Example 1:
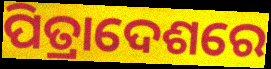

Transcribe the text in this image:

ପିତ୍ରାଦେଶରେ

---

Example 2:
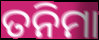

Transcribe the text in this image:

ତନିମା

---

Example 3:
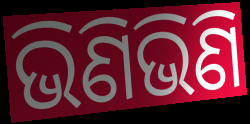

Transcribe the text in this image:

ଭିଣିଭିଣି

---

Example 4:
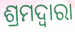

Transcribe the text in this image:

ଶ୍ରମଦ୍ୱାରା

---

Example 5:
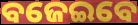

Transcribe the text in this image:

ବଜେଇବେ